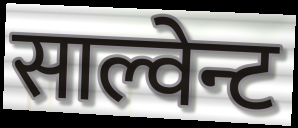
साल्वेन्ट